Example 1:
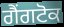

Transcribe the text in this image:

ਗੈਂਗਟੋਕ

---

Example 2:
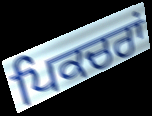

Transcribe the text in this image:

ਪਿਕਚਰਾਂ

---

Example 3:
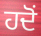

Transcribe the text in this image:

ਹਦੋਂ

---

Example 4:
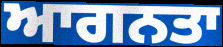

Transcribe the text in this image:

ਆਗਨਤਾ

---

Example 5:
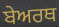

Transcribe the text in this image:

ਬੇਅਰਥ